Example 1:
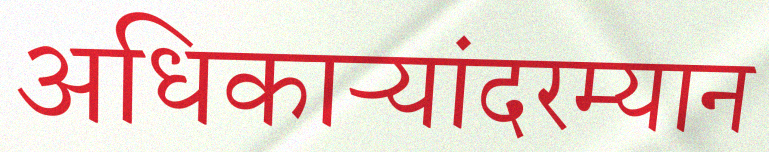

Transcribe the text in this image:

अधिकाऱ्यांदरम्यान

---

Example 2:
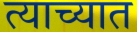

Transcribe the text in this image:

त्याच्यात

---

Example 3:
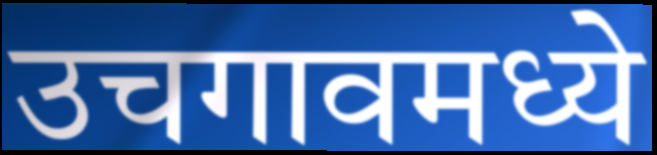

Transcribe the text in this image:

उचगावमध्ये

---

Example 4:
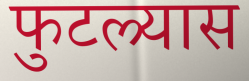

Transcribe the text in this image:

फुटल्यास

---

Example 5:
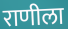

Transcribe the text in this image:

राणीला